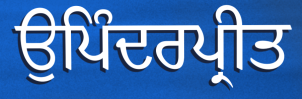
ਉਪਿੰਦਰਪ੍ਰੀਤ